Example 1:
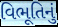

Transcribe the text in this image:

વિભૂતિનું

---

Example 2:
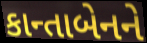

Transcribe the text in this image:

કાન્તાબેનને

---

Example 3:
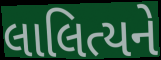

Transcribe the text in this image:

લાલિત્યને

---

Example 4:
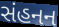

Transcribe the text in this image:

સંહનન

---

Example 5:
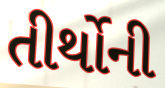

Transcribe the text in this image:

તીર્થોની